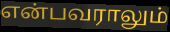
என்பவராலும்